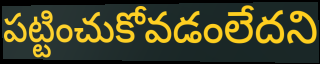
పట్టించుకోవడంలేదని